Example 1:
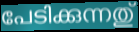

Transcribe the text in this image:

പേടിക്കുന്നതു്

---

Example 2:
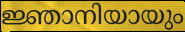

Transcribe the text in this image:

ജ്ഞാനിയായും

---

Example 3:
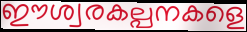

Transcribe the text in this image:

ഈശ്വരകല്പനകളെ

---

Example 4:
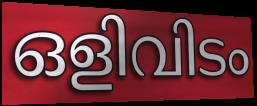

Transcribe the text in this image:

ഒളിവിടം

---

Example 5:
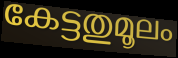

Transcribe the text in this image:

കേട്ടതുമൂലം